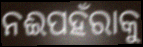
ନଈପହଁରାକୁ